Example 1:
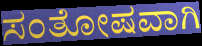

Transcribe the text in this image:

ಸಂತೋಷವಾಗಿ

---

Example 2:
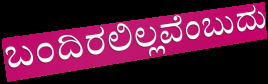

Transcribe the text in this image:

ಬಂದಿರಲಿಲ್ಲವೆಂಬುದು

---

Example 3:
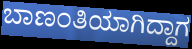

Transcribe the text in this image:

ಬಾಣಂತಿಯಾಗಿದ್ದಾಗ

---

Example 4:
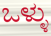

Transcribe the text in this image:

ಒಳ್ಳು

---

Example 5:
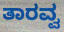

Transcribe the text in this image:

ತಾರವ್ವ